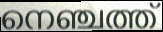
നെഞ്ചത്ത്